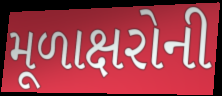
મૂળાક્ષરોની